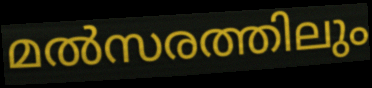
മൽസരത്തിലും